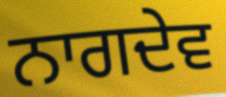
ਨਾਗਦੇਵ